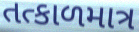
તત્કાળમાત્ર